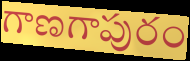
గాణగాపురం